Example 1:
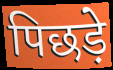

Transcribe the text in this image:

पिछड़े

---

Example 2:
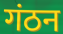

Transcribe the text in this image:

गंठन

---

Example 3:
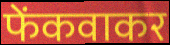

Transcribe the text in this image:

फेंकवाकर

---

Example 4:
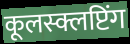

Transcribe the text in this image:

कूलस्क्लप्टिंग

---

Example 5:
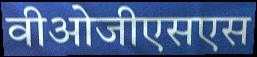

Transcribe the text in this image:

वीओजीएसएस